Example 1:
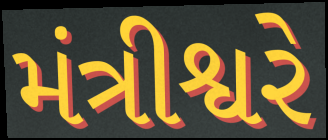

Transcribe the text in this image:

મંત્રીશ્વરે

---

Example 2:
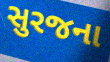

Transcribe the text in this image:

સુરજના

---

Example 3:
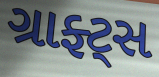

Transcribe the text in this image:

ગ્રાફ્ટ્સ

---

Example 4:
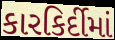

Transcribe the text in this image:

કારકિર્દીમાં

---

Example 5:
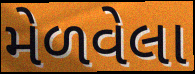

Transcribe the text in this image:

મેળવેલા